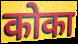
कोका